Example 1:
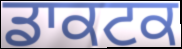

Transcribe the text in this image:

ਡਾਕਟਕ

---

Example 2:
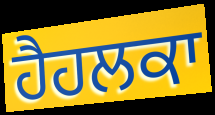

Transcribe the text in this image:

ਹੈਹਲਕਾ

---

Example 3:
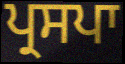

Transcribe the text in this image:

ਪ੍ਰਸਪਾ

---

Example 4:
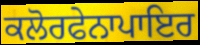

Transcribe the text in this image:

ਕਲੋਰਫੇਨਾਪਾਇਰ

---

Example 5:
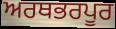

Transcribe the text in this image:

ਅਰਥਭਰਪੂਰ